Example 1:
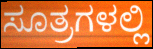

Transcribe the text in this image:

ಸೂತ್ರಗಳಲ್ಲಿ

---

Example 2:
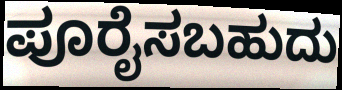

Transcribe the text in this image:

ಪೂರೈಸಬಹುದು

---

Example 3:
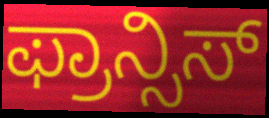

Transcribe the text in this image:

ಫ್ರಾನ್ಸಿಸ್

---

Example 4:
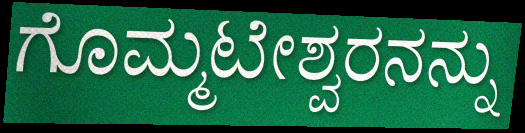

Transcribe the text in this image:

ಗೊಮ್ಮಟೇಶ್ವರನನ್ನು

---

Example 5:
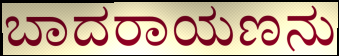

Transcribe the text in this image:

ಬಾದರಾಯಣನು